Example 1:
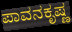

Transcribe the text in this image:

ಪಾವನಕೃಷ್ಣ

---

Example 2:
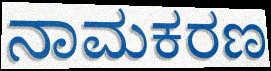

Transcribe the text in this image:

ನಾಮಕರಣ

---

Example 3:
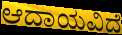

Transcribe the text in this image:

ಆದಾಯವಿದೆ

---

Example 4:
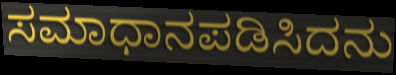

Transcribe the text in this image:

ಸಮಾಧಾನಪಡಿಸಿದನು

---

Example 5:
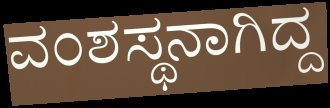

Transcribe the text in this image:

ವಂಶಸ್ಥನಾಗಿದ್ದ